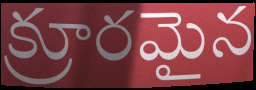
క్రూరమైన